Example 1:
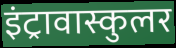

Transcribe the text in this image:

इंट्रावास्कुलर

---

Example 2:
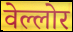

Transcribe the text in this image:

वेल्लोर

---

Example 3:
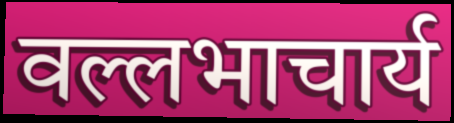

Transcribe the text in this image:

वल्‍लभाचार्य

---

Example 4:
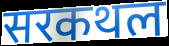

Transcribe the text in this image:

सरकथल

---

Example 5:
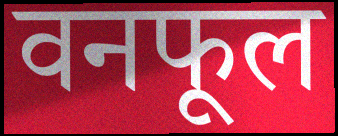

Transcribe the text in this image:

वनफूल